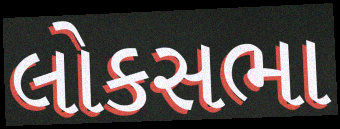
લોકસભા